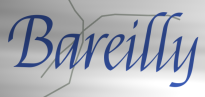
Bareilly